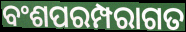
ବଂଶପରମ୍ପରାଗତ